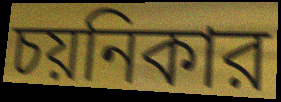
চয়নিকার